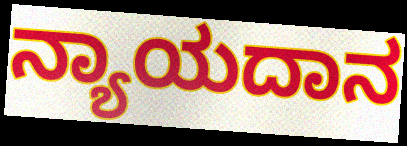
ನ್ಯಾಯದಾನ